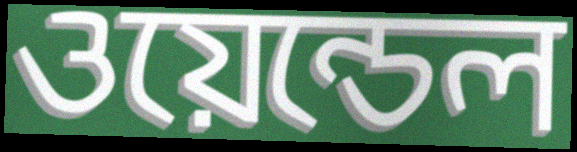
ওয়েন্ডেল